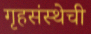
गृहसंस्थेची